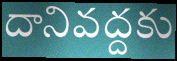
దానివద్దకు